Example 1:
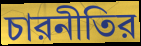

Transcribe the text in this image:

চারনীতির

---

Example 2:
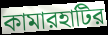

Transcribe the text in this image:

কামারহাটির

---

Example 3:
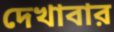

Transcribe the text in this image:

দেখাবার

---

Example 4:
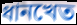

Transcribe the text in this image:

ধানখেত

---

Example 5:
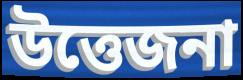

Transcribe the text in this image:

উত্তেজনা